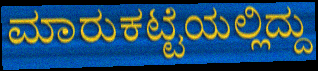
ಮಾರುಕಟ್ಟೆಯಲ್ಲಿದ್ದು